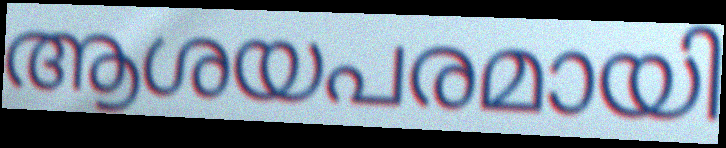
ആശയപരമായി